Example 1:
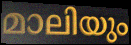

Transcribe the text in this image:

മാലിയും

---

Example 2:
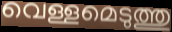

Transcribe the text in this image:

വെള്ളമെടുത്തു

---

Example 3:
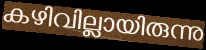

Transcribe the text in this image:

കഴിവില്ലായിരുന്നു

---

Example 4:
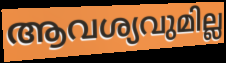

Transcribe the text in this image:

ആവശ്യവുമില്ല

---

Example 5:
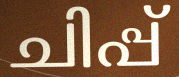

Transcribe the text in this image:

ചിപ്പ്